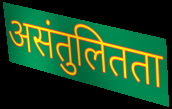
असंतुलितता